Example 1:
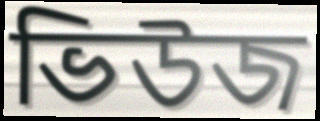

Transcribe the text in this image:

ভিউজ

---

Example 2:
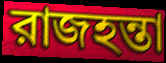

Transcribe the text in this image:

রাজহন্তা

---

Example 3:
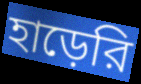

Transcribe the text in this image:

হাড়েরি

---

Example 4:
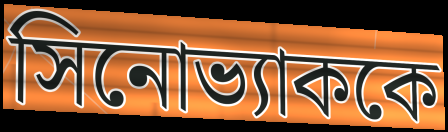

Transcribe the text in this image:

সিনোভ্যাককে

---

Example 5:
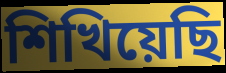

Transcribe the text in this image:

শিখিয়েছি